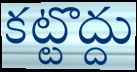
కట్టొద్దు